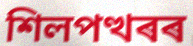
শিলপত্থৰৰ